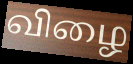
விழை